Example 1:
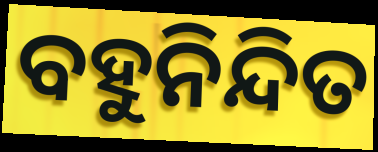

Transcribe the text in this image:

ବହୁନିନ୍ଦିତ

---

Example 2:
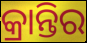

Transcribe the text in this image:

କ୍ରାନ୍ତିର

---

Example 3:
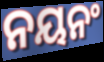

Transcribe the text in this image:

ନୟନଂ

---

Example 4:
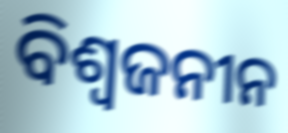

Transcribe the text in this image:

ବିଶ୍ବଜନୀନ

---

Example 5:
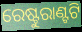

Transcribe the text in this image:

ରେଷ୍ଟୁରାଣ୍ଟଟି